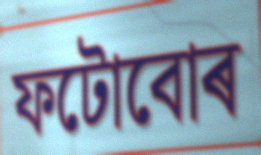
ফটোবোৰ